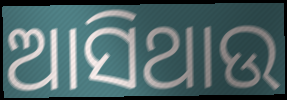
ଆସିଥାଉ